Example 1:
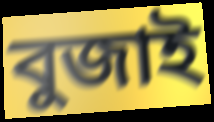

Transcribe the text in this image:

বুজাই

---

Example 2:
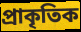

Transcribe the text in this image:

প্ৰাকৃতিক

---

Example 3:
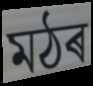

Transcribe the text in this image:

মঠৰ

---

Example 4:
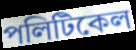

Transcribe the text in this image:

পলিটিকেল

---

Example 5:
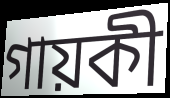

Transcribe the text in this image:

গায়কী